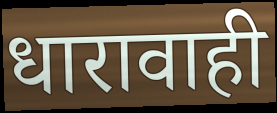
धारावाही